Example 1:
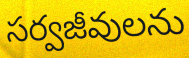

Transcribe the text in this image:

సర్వజీవులను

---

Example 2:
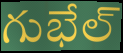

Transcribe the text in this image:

గుభేల్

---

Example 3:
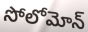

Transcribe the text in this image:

సోలోమోన్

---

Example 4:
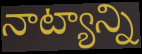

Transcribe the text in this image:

నాట్యాన్ని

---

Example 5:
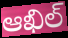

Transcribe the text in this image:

ఆఖిల్